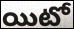
యిటో